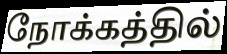
நோக்கத்தில்